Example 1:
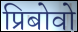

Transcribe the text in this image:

प्रिबोवो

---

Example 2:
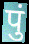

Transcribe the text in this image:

पुं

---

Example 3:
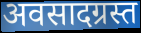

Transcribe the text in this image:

अवसादग्रस्त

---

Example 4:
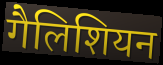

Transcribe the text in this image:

गैलिशियन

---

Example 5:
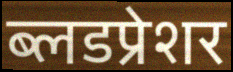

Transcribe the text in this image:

ब्लडप्रेशर